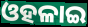
ଓହଳାଇ